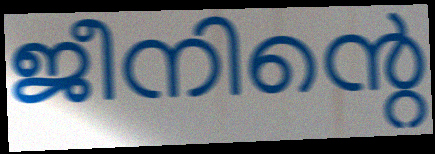
ജീനിന്റെ